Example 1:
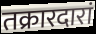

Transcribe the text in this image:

तक्रारदारां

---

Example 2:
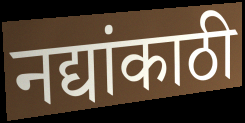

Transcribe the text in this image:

नद्यांकाठी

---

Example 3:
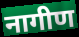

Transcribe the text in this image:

नागीण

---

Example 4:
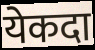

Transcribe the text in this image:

येकदा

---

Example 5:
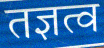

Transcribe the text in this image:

तज्ञत्व